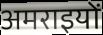
अमराइयों